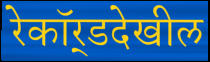
रेकॉर्डदेखील